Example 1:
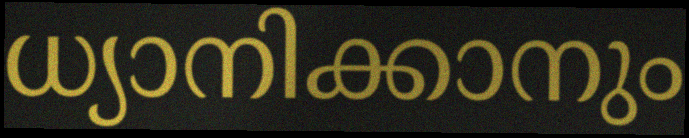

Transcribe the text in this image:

ധ്യാനിക്കാനും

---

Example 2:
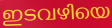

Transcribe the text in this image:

ഇടവഴിയെ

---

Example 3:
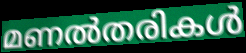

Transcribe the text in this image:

മണൽതരികൾ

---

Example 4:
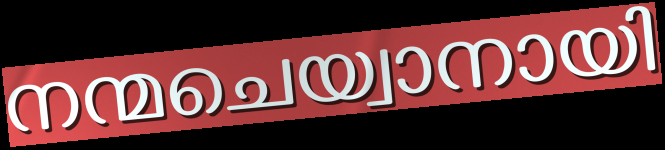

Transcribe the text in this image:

നന്മചെയ്വാനായി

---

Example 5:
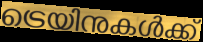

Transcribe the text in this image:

ട്രെയിനുകൾക്ക്